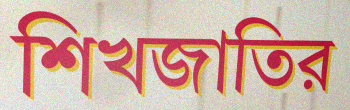
শিখজাতির